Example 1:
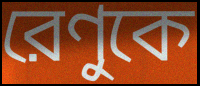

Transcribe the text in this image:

রেণুকে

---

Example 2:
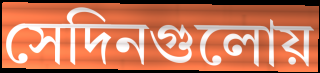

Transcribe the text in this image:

সেদিনগুলোয়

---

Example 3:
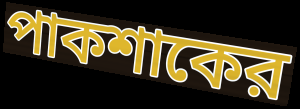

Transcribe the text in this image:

পাকশাকের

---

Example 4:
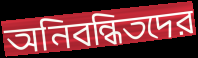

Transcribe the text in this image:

অনিবন্ধিতদের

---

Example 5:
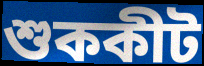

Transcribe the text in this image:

শুককীট